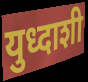
युध्दाशी